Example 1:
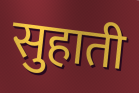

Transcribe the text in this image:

सुहाती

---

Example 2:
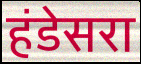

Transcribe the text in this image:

हंडेसरा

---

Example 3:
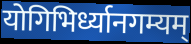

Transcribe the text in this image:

योगिभिर्ध्यानगम्यम्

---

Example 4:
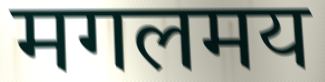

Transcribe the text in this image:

मगलमय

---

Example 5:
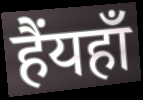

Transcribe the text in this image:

हैंयहाँ